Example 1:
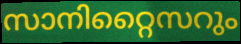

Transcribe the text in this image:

സാനിറ്റൈസറും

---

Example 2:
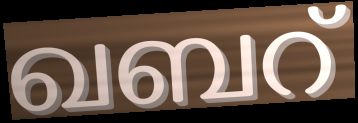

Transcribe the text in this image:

ഖബറ്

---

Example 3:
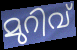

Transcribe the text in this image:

മുറിവ്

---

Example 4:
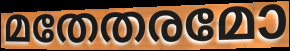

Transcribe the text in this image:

മതേതരമോ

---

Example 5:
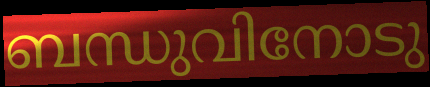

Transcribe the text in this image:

ബന്ധുവിനോടു